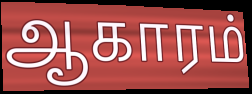
ஆகாரம்